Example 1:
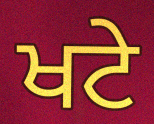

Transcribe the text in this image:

ਖਟੇ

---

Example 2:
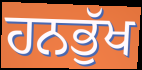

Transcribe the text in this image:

ਹਨਭੁੱਖ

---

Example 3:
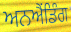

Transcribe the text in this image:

ਅਨਐਂਡਿੰਗ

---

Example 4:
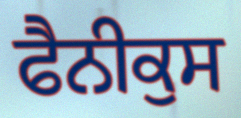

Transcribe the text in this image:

ਫੈਨੀਕੁਸ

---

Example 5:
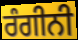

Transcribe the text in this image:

ਰੰਗੀਨੀ